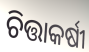
ଚିତ୍ତାକର୍ଷୀ